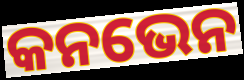
କନଭେନ